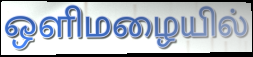
ஒளிமழையில்